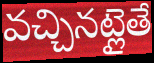
వచ్చినట్లైతే